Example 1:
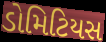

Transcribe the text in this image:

ડોમિટિયસ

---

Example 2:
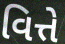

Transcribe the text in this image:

વિત્તે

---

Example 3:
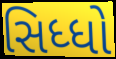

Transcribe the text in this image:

સિધ્ધો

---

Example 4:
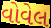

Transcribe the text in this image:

વોવેલ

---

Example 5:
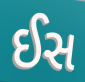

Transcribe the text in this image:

ઈસ